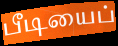
பீடியைப்